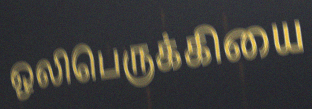
ஒலிபெருக்கியை